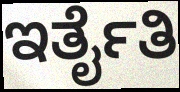
ಇರ್ತೈತಿ